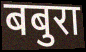
बबुरा